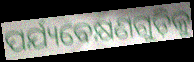
ପର୍ଯ୍ୟବେକ୍ଷଣଗୁଡ଼ିକୁ